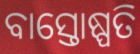
ବାସ୍ତୋଷ୍ପତି